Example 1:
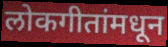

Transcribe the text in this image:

लोकगीतांमधून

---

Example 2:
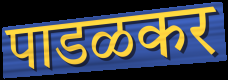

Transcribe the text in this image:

पाडळकर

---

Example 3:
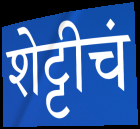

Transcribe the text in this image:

शेट्टीचं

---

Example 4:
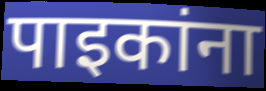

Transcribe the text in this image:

पाइकांना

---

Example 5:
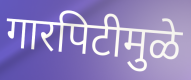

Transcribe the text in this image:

गारपिटीमुळे